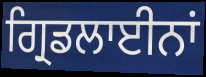
ਗ੍ਰਿਡਲਾਈਨਾਂ